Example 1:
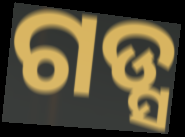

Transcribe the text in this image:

ଗଡ୍ସ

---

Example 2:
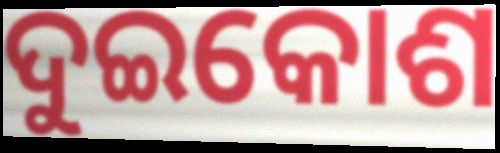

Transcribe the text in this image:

ଦୁଇକୋଶ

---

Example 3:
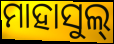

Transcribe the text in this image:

ମାହାସୁଲ୍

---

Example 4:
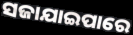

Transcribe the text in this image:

ସଜାଯାଇପାରେ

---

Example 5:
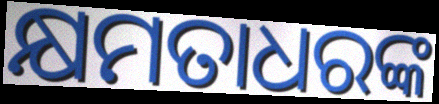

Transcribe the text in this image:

କ୍ଷମତାଧରଙ୍କ